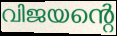
വിജയന്റെ